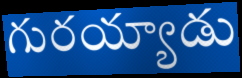
గురయ్యాడు